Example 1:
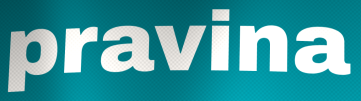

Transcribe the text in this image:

pravina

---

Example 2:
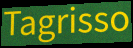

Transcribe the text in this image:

Tagrisso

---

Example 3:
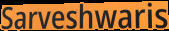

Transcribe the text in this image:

Sarveshwaris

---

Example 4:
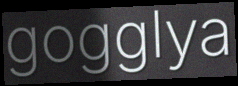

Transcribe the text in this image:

gogglya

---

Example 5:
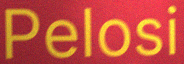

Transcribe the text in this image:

Pelosi